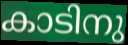
കാടിനു